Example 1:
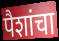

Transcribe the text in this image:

पैशांचा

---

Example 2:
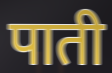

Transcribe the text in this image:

पाती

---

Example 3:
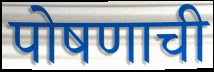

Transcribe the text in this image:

पोषणाची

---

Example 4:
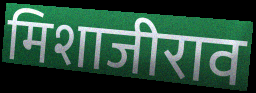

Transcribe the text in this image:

मिशाजीराव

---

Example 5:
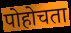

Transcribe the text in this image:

पोहोचता